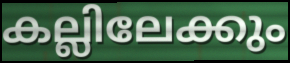
കല്ലിലേക്കും